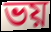
ভয়